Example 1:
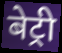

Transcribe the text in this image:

बेट्री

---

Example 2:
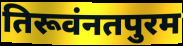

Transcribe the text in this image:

तिरूवंनतपुरम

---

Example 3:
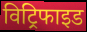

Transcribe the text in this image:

विट्रिफाइड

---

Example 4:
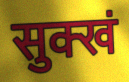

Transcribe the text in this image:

सुक्खं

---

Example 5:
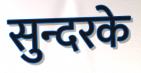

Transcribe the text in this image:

सुन्दरके